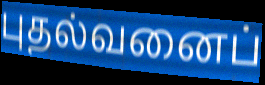
புதல்வனைப்